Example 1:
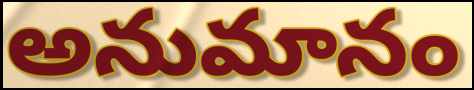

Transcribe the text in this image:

అనుమానం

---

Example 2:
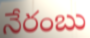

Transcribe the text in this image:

నేరంబు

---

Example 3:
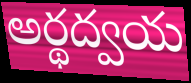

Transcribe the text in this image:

అర్థద్వయ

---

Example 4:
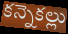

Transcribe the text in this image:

కన్నెకల్లు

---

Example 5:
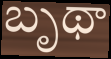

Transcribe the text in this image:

బృథా